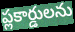
ప్లకార్డులను